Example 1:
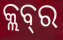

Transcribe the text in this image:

କ୍ଲବ୍‌ର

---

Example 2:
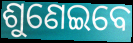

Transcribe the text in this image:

ଶୁଣେଇବେ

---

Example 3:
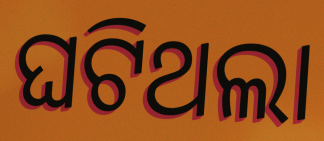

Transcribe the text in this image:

ଘଟିଥଲା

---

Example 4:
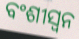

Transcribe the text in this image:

ବଂଶୀସ୍ୱନ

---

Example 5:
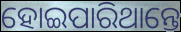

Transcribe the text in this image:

ହୋଇପାରିଥାନ୍ତେ